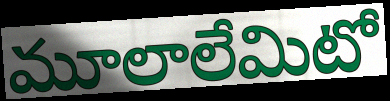
మూలాలేమిటో